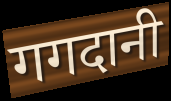
गगदानी